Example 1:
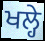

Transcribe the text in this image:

ਖਲ੍ਹੇ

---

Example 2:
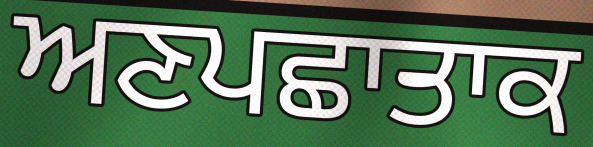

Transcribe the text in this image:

ਅਣਪਛਾਤਾਕ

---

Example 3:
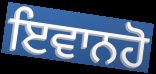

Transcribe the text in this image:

ਇਵਾਨਹੋ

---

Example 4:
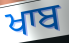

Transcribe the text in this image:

ਖਾਬ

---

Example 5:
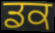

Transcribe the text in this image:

ਡਕ